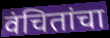
वंचितांचा